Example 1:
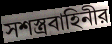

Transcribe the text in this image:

সশস্ত্রবাহিনীর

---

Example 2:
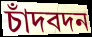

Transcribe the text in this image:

চাঁদবদন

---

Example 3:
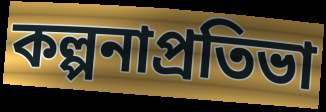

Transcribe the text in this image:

কল্পনাপ্রতিভা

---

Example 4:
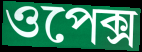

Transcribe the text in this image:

ওপেক্স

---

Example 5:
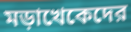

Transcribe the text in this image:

মড়াখেকেদের